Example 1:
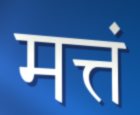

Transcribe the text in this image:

मत्तं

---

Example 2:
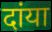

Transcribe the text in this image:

दांया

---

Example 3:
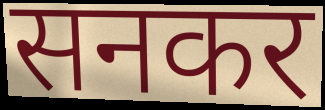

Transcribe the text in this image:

सनकर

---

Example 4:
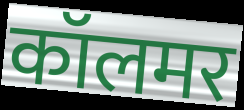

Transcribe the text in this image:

कॉलमर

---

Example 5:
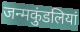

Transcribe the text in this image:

जन्मकुंडलियां